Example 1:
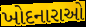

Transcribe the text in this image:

ખોદનારાઓ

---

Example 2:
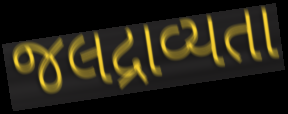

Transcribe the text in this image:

જલદ્રાવ્યતા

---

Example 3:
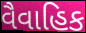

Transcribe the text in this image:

વૈવાહિક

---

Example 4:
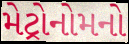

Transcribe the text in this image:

મેટ્રોનોમનો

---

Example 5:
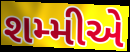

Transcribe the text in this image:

શમ્મીએ